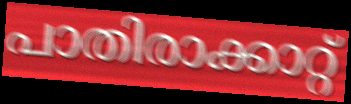
പാതിരാക്കാറ്റ്